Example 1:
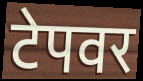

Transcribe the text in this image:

टेपवर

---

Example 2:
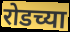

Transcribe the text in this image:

रोडच्या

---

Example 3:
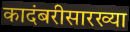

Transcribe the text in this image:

कादंबरीसारख्या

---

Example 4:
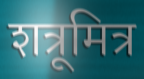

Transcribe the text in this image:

शत्रूमित्र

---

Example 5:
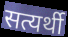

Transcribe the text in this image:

सत्यर्थी